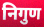
निगुण